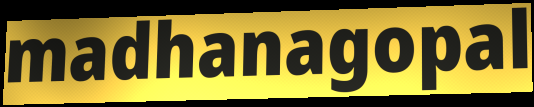
madhanagopal